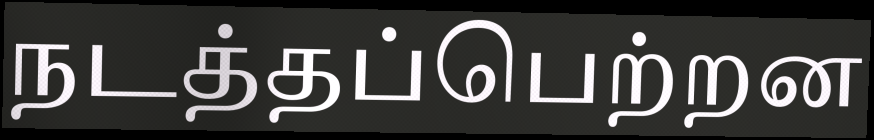
நடத்தப்பெற்றன